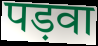
पड़वा